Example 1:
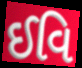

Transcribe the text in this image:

ઈવિ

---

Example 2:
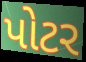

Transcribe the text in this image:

પોટર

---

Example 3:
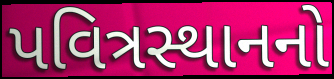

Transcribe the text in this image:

પવિત્રસ્થાનનો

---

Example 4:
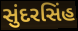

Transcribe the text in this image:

સુંદરસિંહ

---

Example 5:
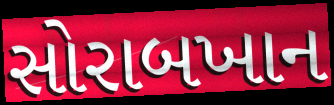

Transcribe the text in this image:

સોરાબખાન